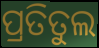
ପ୍ରତିତୁଲ